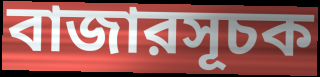
বাজারসূচক